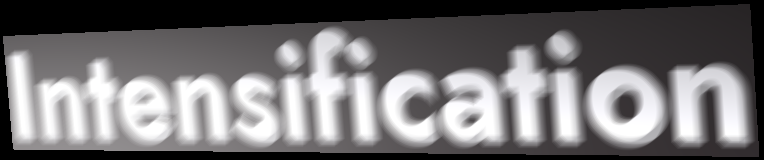
Intensification